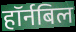
हॉर्नबिल